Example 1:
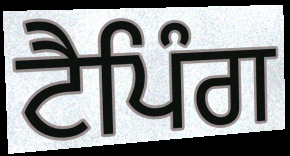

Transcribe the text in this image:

ਟੈਪਿੰਗ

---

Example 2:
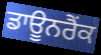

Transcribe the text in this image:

ਡਾਊਨਰੈਂਕ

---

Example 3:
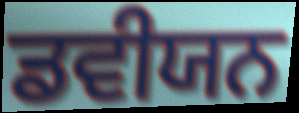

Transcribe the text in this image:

ਡਵੀਯਨ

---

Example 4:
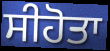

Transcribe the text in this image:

ਸੀਹੋਤਾ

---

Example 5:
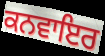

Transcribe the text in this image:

ਕਨਵਾਇਰ